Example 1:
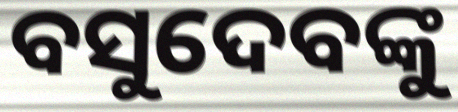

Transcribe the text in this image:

ବସୁଦେବଙ୍କୁ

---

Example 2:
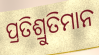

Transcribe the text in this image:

ପ୍ରତିଶ୍ରୁତିମାନ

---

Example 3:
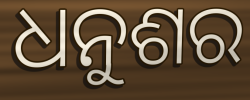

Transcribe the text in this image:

ଧନୁଶର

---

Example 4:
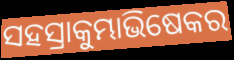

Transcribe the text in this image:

ସହସ୍ରାକୁମ୍ଭାଭିଷେକର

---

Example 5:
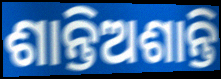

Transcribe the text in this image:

ଶାନ୍ତିଅଶାନ୍ତି